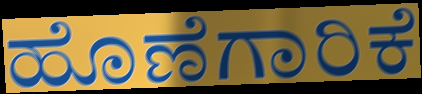
ಹೊಣೆಗಾರಿಕೆ